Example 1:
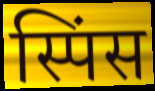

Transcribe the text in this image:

स्पिंस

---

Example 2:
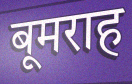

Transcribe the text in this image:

बूमराह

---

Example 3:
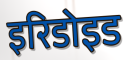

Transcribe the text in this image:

इरिडोइड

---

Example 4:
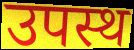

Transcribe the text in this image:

उपस्थ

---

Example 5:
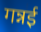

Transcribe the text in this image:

गन्नई